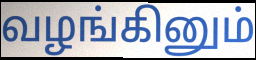
வழங்கினும்